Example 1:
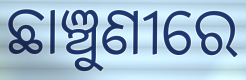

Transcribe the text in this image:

ଛାଞ୍ଚୁଣୀରେ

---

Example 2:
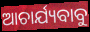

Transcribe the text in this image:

ଆଚାର୍ଯ୍ୟବାବୁ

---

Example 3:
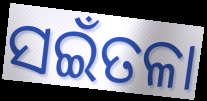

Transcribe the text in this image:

ସଇଁତଳା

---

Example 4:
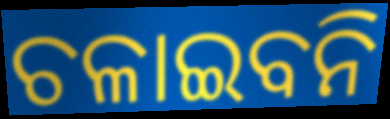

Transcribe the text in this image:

ଚଳାଇବନି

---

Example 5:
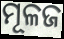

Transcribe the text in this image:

ମୂଳଜ